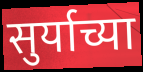
सुर्याच्या